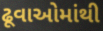
ઢૂવાઓમાંથી